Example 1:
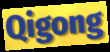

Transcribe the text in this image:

Qigong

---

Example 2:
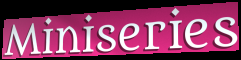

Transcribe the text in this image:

Miniseries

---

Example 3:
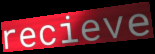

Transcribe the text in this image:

recieve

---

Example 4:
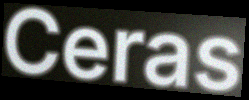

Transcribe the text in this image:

Ceras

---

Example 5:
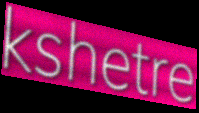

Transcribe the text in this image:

kshetre